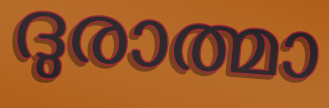
ദുരാത്മാ